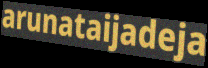
arunataijadeja